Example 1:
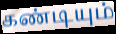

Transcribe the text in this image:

கண்டியும்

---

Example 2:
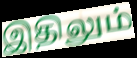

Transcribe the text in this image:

இதிலும்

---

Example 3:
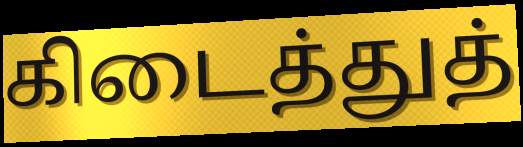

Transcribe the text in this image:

கிடைத்துத்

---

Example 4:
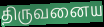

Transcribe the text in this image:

திருவனைய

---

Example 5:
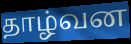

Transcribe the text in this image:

தாழ்வன